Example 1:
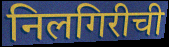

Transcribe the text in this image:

निलगिरीची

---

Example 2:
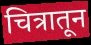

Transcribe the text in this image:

चित्रातून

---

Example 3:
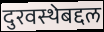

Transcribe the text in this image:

दुरवस्थेबद्दल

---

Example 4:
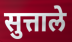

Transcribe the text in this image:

सुत्ताले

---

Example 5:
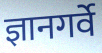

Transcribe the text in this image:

ज्ञानगर्वे